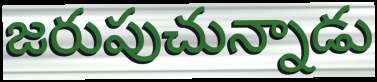
జరుపుచున్నాడు